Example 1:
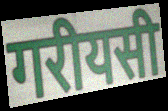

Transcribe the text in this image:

गरीयसी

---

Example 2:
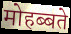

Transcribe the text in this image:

मोहब्बते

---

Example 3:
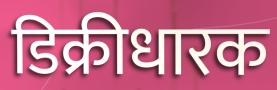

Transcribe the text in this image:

डिक्रीधारक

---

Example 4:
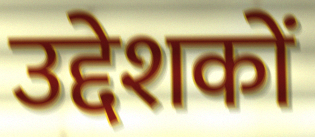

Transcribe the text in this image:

उद्देशकों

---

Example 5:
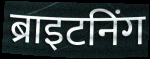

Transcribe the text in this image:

ब्राइटनिंग